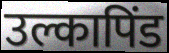
उल्कापिंड